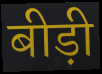
बीड़ी